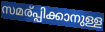
സമര്പ്പിക്കാനുള്ള